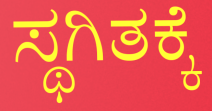
ಸ್ಥಗಿತಕ್ಕೆ